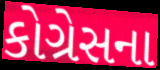
કોગ્રેસના